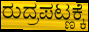
ರುದ್ರಪಟ್ಣಕ್ಕೆ